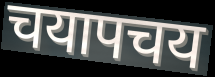
चयापचय